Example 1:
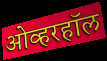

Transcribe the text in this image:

ओव्हरहॉल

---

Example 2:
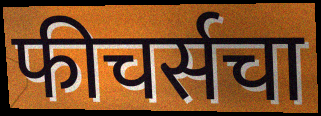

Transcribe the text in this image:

फीचर्सचा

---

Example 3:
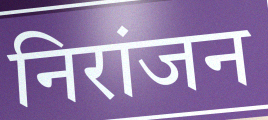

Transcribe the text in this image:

निरांजन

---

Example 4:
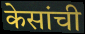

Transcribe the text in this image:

केसांची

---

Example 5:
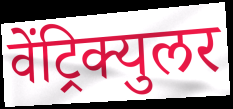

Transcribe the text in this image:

वेंट्रिक्युलर